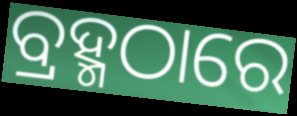
ବ୍ରହ୍ମଠାରେ